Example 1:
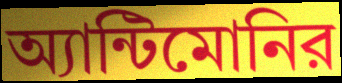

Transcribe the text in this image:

অ্যান্টিমোনির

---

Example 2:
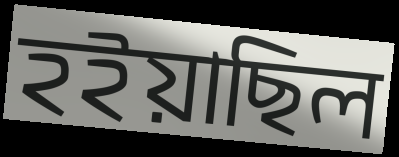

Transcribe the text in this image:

হইয়াছিল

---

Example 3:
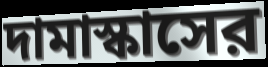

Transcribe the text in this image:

দামাস্কাসের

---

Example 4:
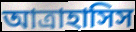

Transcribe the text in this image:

আত্রাহাসিস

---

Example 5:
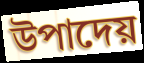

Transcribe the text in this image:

উপাদেয়